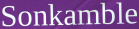
Sonkamble